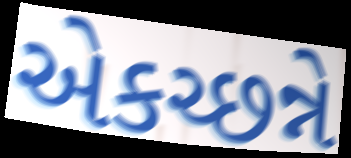
એકચ્છન્ને